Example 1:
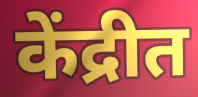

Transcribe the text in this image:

केंद्रीत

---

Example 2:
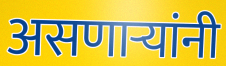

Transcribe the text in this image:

असणाऱ्यांनी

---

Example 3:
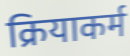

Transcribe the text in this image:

क्रियाकर्म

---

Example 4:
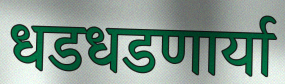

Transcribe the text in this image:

धडधडणार्या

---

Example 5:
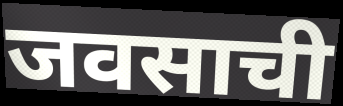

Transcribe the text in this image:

जवसाची